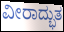
ವೀರಾದ್ಭುತ